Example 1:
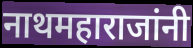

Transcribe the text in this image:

नाथमहाराजांनी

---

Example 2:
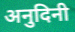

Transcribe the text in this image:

अनुदिनी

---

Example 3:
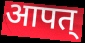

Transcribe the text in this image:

आपत्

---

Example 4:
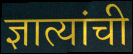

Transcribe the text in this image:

ज्ञात्यांची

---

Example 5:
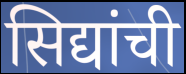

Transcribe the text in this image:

सिद्यांची